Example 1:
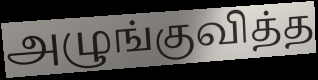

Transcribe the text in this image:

அழுங்குவித்த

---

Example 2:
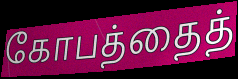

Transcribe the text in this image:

கோபத்தைத்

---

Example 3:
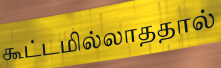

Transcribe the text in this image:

கூட்டமில்லாததால்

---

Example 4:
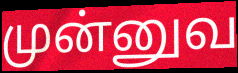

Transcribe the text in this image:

முன்னுவ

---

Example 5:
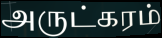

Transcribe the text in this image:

அருட்கரம்